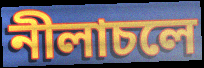
নীলাচলে